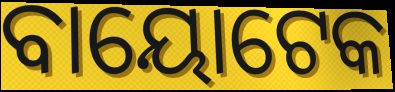
ବାୟୋଟେକ